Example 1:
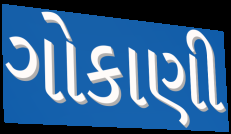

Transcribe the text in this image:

ગોકાણી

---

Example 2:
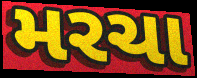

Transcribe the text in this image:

મરચા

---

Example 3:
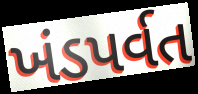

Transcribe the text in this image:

ખંડપર્વત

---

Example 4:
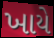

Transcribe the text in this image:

ખાયે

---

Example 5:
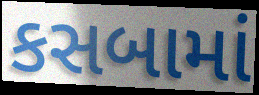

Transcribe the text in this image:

કસબામાં